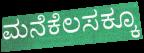
ಮನೆಕೆಲಸಕ್ಕೂ